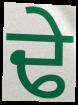
ਢੇ